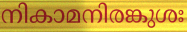
നികാമനിരങ്കുശഃ